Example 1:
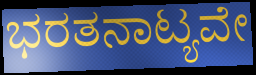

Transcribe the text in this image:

ಭರತನಾಟ್ಯವೇ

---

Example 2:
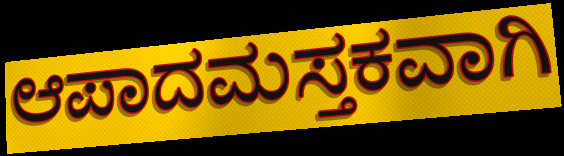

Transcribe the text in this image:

ಆಪಾದಮಸ್ತಕವಾಗಿ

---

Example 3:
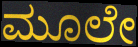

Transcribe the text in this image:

ಮೂಲೇ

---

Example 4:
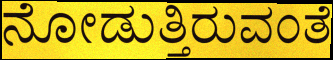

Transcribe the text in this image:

ನೋಡುತ್ತಿರುವಂತೆ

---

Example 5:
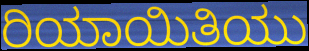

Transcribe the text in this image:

ರಿಯಾಯಿತಿಯು